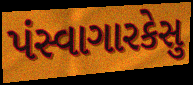
પંસ્વાગારકેસુ